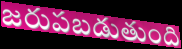
జరుపబడుతుంది